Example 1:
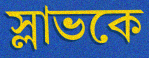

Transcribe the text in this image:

স্লাভকে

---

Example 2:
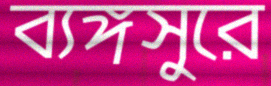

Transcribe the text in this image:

ব্যঙ্গসুরে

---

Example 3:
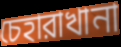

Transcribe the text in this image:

চেহারাখানা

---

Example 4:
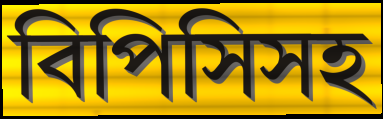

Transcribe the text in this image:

বিপিসিসহ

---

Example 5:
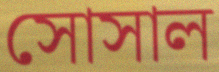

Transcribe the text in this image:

সোসাল